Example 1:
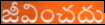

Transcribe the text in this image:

జీవించదు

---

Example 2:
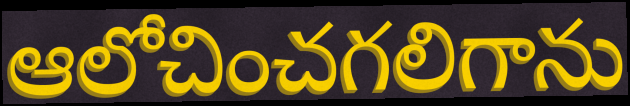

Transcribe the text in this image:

ఆలోచించగలిగాను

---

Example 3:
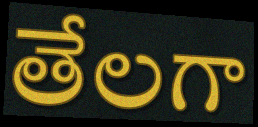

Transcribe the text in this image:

తేలగా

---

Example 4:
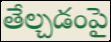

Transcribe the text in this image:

తేల్చడంపై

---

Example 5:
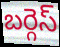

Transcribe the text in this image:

బర్గెస్